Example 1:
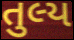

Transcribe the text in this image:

તુલ્ય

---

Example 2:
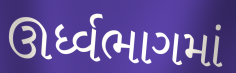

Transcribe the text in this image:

ઊર્ધ્વભાગમાં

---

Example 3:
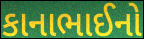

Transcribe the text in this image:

કાનાભાઈનો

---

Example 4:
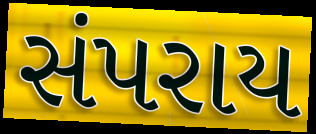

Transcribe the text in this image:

સંપરાય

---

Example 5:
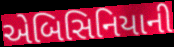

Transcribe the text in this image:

એબિસિનિયાની